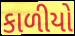
કાળીયો